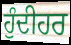
ਹੁੰਦੀਹਰ